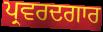
ਪ੍ਰਵਰਦਗਾਰ